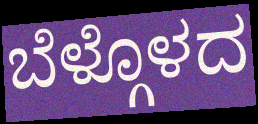
ಬೆಳ್ಗೊಳದ